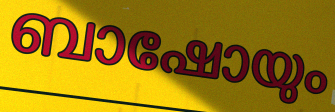
ബാഷോയും